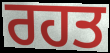
ਰਹਤ